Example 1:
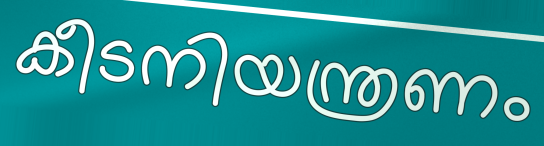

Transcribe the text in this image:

കീടനിയന്ത്രണം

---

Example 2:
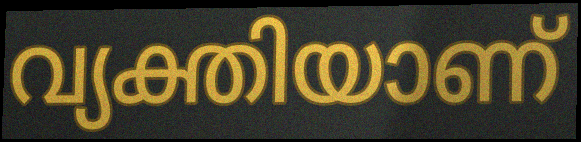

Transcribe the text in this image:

വ്യക്തിയാണ്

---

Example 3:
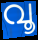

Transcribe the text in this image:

വൂ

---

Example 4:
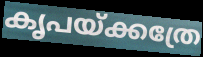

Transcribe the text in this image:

കൃപയ്ക്കത്രേ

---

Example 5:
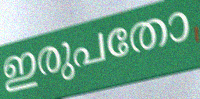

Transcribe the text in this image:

ഇരുപതോ